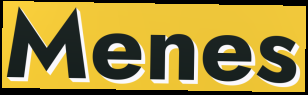
Menes